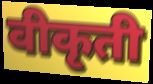
वीकृती